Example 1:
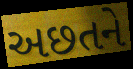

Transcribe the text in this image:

અછતને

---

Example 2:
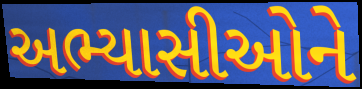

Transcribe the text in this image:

અભ્યાસીઓને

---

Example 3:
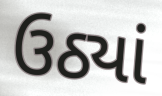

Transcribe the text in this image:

ઉઠ્યાં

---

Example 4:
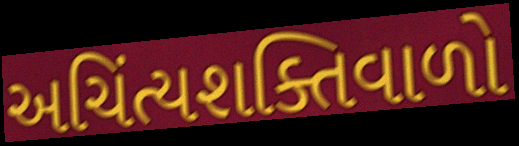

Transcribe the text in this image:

અચિંત્યશક્તિવાળો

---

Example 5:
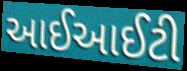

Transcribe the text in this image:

આઈઆઈટી